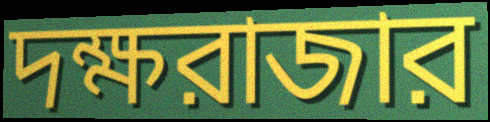
দক্ষরাজার